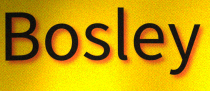
Bosley